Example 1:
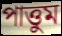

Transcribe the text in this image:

পাত্তুম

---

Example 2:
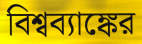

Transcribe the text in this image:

বিশ্বব্যাঙ্কের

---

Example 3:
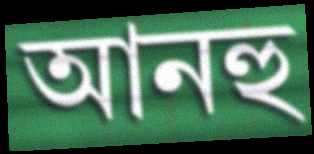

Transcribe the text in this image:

আনহু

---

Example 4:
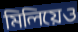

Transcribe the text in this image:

মিলিয়েও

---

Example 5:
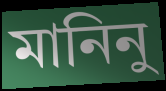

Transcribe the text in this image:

মানিনু